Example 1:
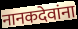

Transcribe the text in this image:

नानकदेवांना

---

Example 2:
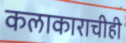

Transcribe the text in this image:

कलाकाराचीही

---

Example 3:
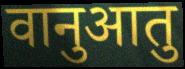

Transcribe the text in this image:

वानुआतु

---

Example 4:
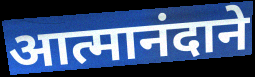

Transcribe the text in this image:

आत्मानंदाने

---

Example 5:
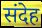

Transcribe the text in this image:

संदेह